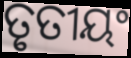
ତୃତୀୟଂ